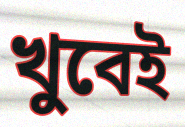
খুবেই